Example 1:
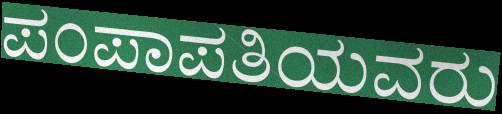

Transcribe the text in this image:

ಪಂಪಾಪತಿಯವರು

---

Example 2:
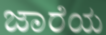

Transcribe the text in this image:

ಜಾರೆಯ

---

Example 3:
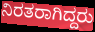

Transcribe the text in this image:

ನಿರತರಾಗಿದ್ದರು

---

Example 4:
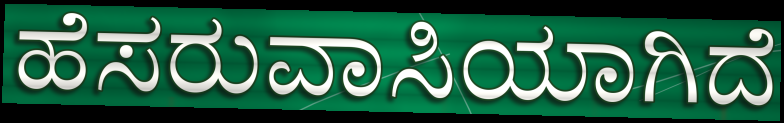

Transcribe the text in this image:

ಹೆಸರುವಾಸಿಯಾಗಿದೆ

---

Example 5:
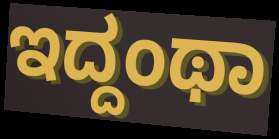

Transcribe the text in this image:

ಇದ್ದಂಥಾ